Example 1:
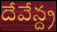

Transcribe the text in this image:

దేవేన్ద్ర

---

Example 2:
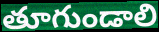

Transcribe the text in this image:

తూగుండాలి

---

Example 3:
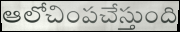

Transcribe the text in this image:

ఆలోచింపచేస్తుంది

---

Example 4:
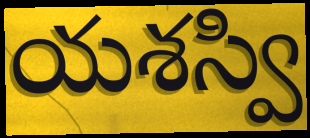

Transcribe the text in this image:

యశస్వి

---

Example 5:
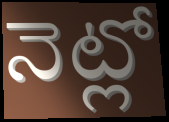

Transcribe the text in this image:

నెట్లో